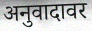
अनुवादावर